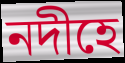
নদীহে